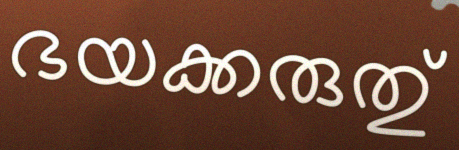
ഭയക്കരുതു്